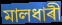
মালধাৰী